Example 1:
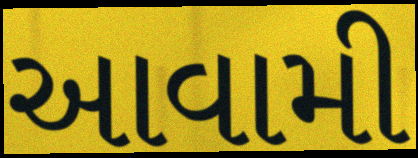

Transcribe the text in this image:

આવામી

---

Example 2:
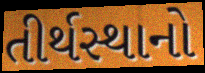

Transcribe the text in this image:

તીર્થસ્થાનો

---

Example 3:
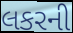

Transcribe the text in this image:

લકરની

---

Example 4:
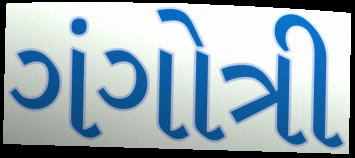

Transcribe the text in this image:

ગંગોત્રી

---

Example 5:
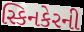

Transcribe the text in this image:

સ્કિનકેરની